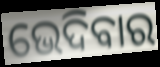
ଭେଦିବାର